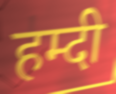
हम्दी